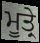
ਮੂਤ੍ਰੇ